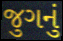
જુગનું